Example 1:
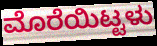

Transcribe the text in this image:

ಮೊರೆಯಿಟ್ಟಳು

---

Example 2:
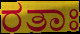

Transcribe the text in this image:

ರತಾಃ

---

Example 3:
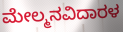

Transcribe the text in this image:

ಮೇಲ್ಮನವಿದಾರಳ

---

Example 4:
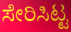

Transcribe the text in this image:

ಸೇರಿಸಿಟ್ಟ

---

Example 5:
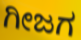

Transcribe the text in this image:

ಗೀಜಗ